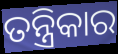
ତନ୍ତ୍ରିକାର